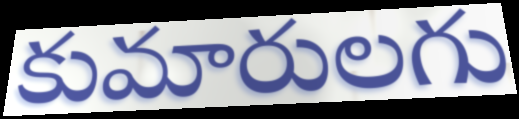
కుమారులగు